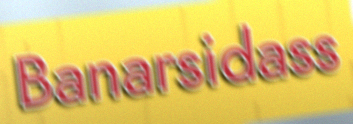
Banarsidass